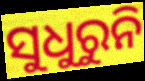
ସୁଧୁରୁନି